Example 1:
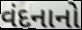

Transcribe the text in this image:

વંદનાનો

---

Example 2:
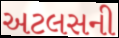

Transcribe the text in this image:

અટલસની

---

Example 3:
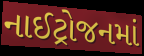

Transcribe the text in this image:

નાઈટ્રોજનમાં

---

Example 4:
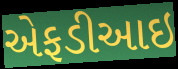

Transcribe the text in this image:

એફડીઆઇ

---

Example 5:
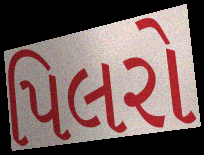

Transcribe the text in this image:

પિલરો